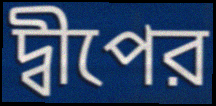
দ্বীপের